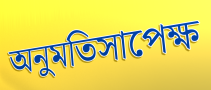
অনুমতিসাপেক্ষ